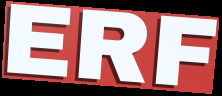
ERF